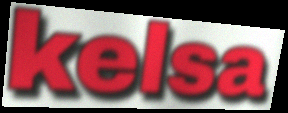
kelsa